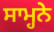
ਸਾਮ੍ਹਨੇ